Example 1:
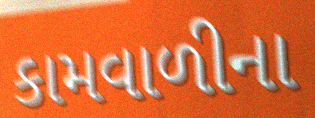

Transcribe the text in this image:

કામવાળીના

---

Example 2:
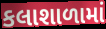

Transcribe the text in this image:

કલાશાળામાં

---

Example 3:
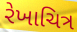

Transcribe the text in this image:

રેખાચિત્ર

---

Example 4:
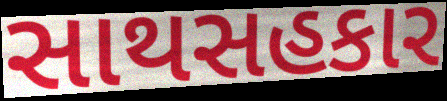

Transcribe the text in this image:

સાથસહકાર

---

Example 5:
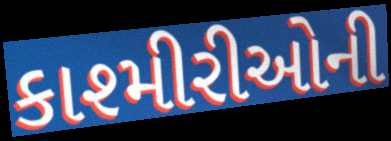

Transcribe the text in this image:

કાશ્મીરીઓની